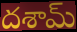
దశామ్